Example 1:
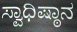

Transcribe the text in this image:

ಸ್ವಾಧಿಷ್ಠಾನ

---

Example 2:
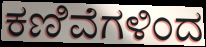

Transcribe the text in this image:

ಕಣಿವೆಗಳಿಂದ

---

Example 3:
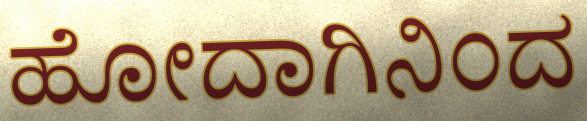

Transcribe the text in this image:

ಹೋದಾಗಿನಿಂದ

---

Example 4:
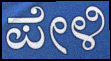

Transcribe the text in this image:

ಪೇಳಿ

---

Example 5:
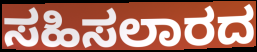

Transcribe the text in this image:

ಸಹಿಸಲಾರದ